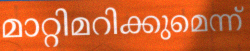
മാറ്റിമറിക്കുമെന്ന്